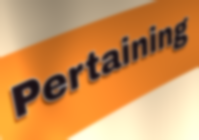
Pertaining